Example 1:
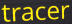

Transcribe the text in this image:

tracer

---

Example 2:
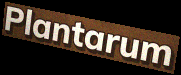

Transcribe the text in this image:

Plantarum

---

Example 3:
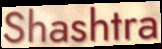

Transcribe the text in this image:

Shashtra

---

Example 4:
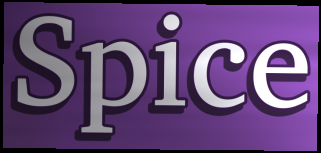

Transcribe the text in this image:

Spice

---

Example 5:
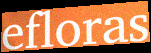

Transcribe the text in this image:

efloras